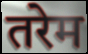
तरेम